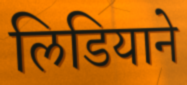
लिडियाने